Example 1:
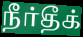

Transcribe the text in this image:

நீர்தீக்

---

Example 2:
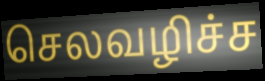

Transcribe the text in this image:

செலவழிச்ச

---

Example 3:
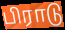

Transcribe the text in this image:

பிராடு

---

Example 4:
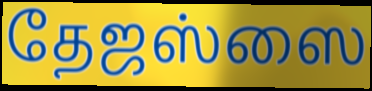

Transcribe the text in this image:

தேஜஸ்ஸை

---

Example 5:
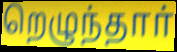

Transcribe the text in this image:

றெழுந்தார்